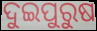
ଦୁଇପୁରୁଷ